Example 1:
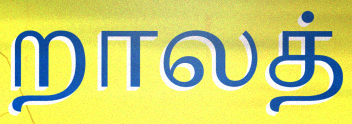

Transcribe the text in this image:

றாலத்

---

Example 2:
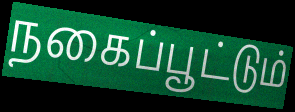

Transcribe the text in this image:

நகைப்பூட்டும்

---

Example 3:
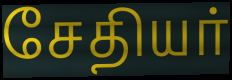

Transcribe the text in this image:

சேதியர்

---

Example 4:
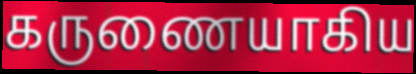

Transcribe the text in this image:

கருணையாகிய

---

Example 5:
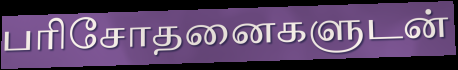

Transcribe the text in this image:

பரிசோதனைகளுடன்